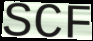
SCF